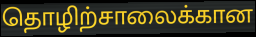
தொழிற்சாலைக்கான